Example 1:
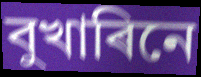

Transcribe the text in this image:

বুখাৰিনে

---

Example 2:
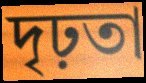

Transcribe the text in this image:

দৃঢ়তা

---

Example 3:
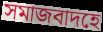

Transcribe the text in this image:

সমাজবাদহে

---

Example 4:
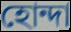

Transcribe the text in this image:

হোন্দা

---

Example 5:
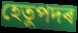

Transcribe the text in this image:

হেতুপদৰ